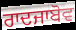
ਰਾਦਜਾਬੋਵ